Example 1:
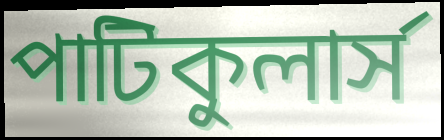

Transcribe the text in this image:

পাটিকুলার্স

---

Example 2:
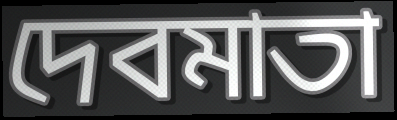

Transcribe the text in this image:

দেবমাতা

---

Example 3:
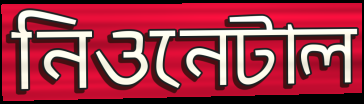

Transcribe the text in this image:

নিওনেটাল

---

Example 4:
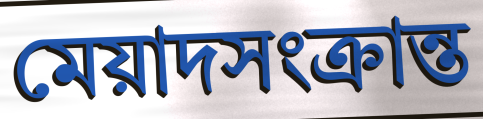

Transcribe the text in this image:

মেয়াদসংক্রান্ত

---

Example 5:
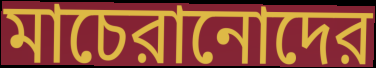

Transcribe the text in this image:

মাচেরানোদের